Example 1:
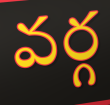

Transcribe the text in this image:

వర్గ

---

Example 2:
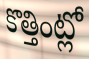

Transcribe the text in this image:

కొత్తింట్లో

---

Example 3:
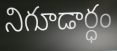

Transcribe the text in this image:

నిగూడార్ధం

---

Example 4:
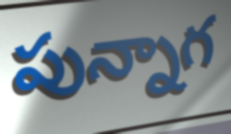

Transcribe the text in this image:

పున్నాగ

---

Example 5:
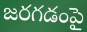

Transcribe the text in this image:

జరగడంపై